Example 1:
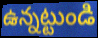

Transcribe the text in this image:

ఉన్నట్టుండి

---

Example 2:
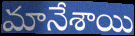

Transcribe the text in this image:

మానేశాయి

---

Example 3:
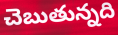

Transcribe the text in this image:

చెబుతున్నది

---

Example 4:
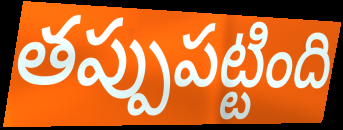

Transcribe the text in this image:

తప్పుపట్టింది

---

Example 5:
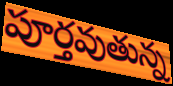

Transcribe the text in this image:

పూర్తవుతున్న